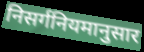
निसर्गनियमानुसार